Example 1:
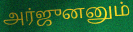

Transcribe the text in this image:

அர்ஜுனனும்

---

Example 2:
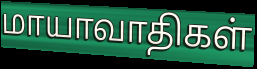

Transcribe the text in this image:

மாயாவாதிகள்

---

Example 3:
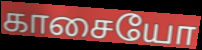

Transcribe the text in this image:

காசையோ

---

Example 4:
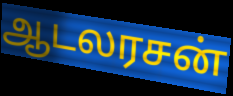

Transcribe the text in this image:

ஆடலரசன்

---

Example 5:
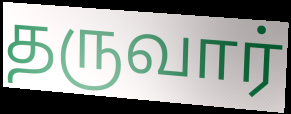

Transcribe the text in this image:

தருவார்